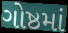
ગોષ્ઠમાં